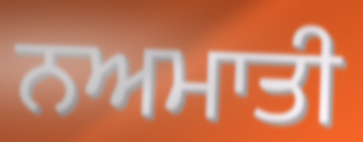
ਨਅਮਾਤੀ